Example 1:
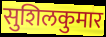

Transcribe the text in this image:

सुशिलकुमार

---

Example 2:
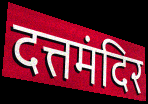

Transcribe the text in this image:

दत्तमंदिर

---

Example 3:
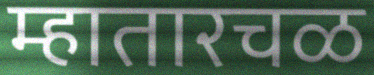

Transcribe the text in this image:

म्हातारचळ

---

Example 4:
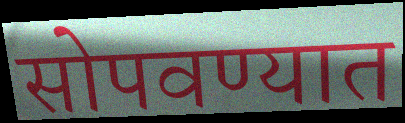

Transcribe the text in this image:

सोपवण्यात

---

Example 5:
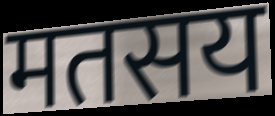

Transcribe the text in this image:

मतसय